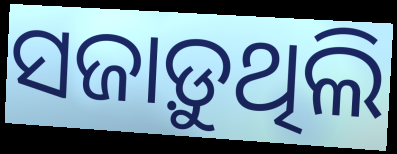
ସଜାଡ଼ୁଥିଲି